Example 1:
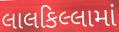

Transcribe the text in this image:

લાલકિલ્લામાં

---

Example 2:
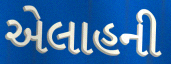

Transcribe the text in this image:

એલાહની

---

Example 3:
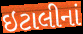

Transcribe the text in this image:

ઇટાલીનાં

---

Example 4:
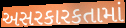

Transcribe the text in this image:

અસરકારકતામાં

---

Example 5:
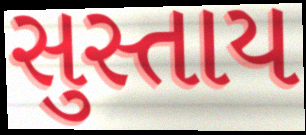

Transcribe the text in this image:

સુસ્તાય